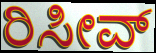
ರಿಸೀವ್